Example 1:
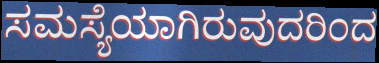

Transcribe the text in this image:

ಸಮಸ್ಯೆಯಾಗಿರುವುದರಿಂದ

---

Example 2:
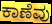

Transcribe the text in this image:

ಕಾಣೆವು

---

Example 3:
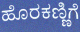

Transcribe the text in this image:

ಹೊರಕಣ್ಣಿಗೆ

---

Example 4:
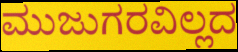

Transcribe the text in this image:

ಮುಜುಗರವಿಲ್ಲದ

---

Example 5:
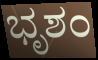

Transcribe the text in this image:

ಭೃಶಂ